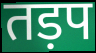
तड़प